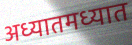
अध्यातमध्यात